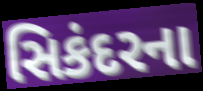
સિકંદરના